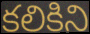
కలికిని